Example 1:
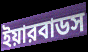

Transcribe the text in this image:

ইয়ারবাডস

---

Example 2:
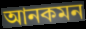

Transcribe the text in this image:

আনকমন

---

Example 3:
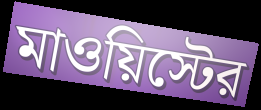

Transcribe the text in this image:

মাওয়িস্টের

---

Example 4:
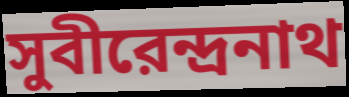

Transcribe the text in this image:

সুবীরেন্দ্রনাথ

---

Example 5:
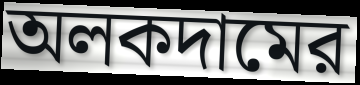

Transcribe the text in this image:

অলকদামের